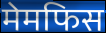
मेमफिस